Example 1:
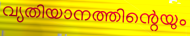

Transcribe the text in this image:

വ്യതിയാനത്തിന്റെയും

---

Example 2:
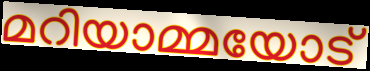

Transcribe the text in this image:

മറിയാമ്മയോട്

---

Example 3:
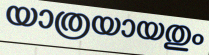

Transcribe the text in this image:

യാത്രയായതും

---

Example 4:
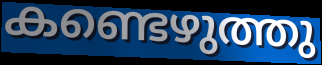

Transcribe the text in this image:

കണ്ടെഴുത്തു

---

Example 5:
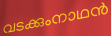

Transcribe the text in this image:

വടക്കുംനാഥൻ